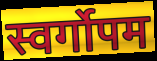
स्वर्गोपम